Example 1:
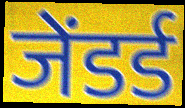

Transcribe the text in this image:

जेंडर्ड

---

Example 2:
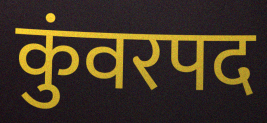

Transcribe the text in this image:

कुंवरपद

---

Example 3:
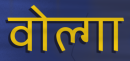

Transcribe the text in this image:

वोल्गा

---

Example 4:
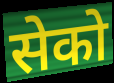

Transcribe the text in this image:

सेको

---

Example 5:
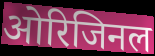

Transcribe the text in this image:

ओरिजिनल